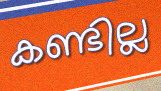
കണ്ടില്ല